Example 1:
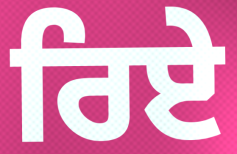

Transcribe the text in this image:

ਰਿਏ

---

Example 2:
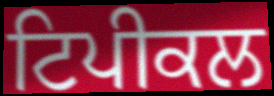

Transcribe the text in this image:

ਟਿਪੀਕਲ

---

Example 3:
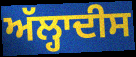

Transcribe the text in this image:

ਅੱਲ੍ਹਾਦੀਸ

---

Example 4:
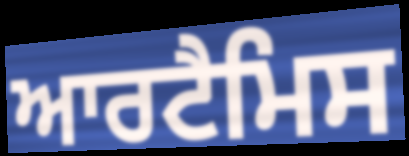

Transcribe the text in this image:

ਆਰਟੈਮਿਸ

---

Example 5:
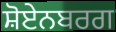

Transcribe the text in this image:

ਸ਼ੋਏਨਬਰਗ